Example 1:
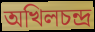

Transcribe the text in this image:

অখিলচন্দ্র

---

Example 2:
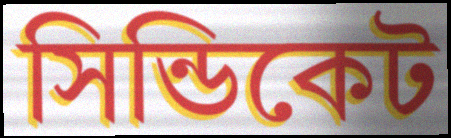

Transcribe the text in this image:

সিন্ডিকেট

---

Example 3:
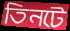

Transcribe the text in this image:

তিনটে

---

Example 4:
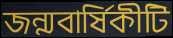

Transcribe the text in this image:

জন্মবার্ষিকীটি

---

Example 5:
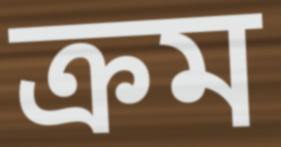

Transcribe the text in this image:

ক্রম